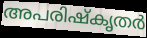
അപരിഷ്കൃതർ